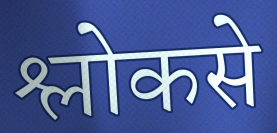
श्लोकसे